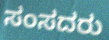
ಸಂಸದರು